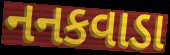
નનકવાડા